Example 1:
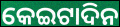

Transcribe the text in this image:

କେଇଟାଦିନ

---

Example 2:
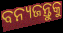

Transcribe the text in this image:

ବନ୍ୟଜନ୍ତୁକୁ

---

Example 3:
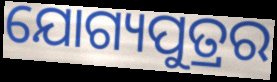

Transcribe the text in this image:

ଯୋଗ୍ୟପୁତ୍ରର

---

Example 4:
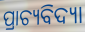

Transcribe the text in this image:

ପ୍ରାଚ୍ୟବିଦ୍ୟା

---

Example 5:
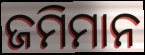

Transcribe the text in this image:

ଜମିମାନ